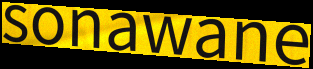
sonawane